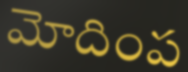
మోదింప